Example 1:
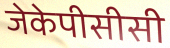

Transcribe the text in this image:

जेकेपीसीसी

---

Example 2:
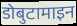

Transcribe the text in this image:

डोबुटामाइन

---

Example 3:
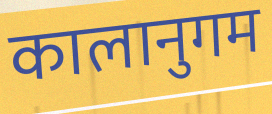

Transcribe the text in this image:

कालानुगम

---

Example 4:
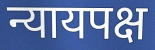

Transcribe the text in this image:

न्यायपक्ष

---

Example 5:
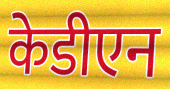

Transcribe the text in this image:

केडीएन